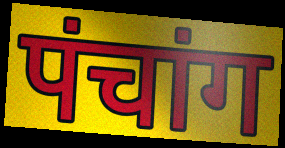
पंचांग